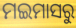
ମଇମାସରୁ